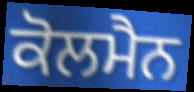
ਕੋਲਮੈਨ